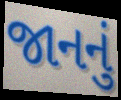
જાનનું